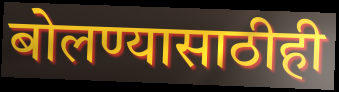
बोलण्यासाठीही